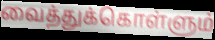
வைத்துக்கொள்ளும்